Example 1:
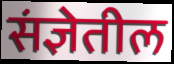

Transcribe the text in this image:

संज्ञेतील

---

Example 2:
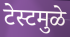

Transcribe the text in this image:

टेस्टमुळे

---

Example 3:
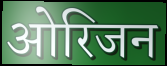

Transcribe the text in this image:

ओरिजन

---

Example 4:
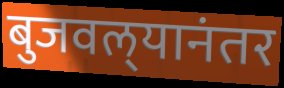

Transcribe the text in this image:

बुजवल्यानंतर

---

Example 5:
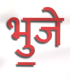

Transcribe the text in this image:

भु॒जे